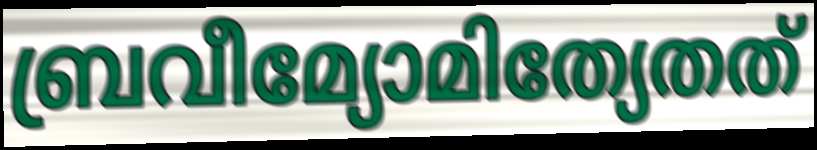
ബ്രവീമ്യോമിത്യേതത്